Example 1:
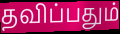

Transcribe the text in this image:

தவிப்பதும்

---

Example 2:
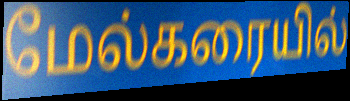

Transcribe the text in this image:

மேல்கரையில்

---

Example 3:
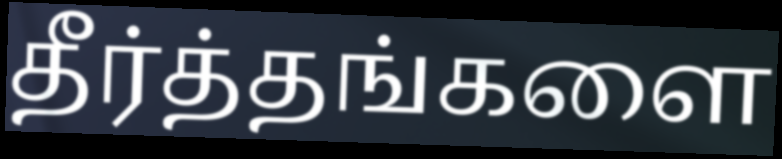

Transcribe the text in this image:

தீர்த்தங்களை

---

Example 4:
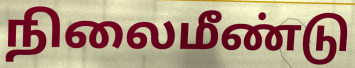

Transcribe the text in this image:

நிலைமீண்டு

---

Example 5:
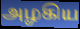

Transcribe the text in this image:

அழகிய